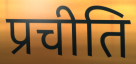
प्रचीति